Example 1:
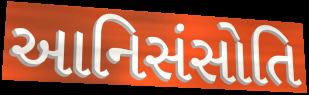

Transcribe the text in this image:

આનિસંસોતિ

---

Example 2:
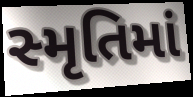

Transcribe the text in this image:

સ્મૃતિમાં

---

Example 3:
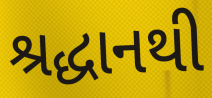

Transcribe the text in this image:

શ્રદ્ધાનથી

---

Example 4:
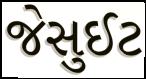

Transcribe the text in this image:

જેસુઈટ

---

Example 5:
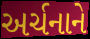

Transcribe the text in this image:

અર્ચનાને